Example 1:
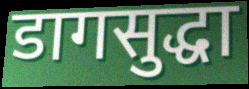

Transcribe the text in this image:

डागसुद्धा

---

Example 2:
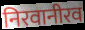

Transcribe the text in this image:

निरवानीरव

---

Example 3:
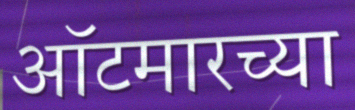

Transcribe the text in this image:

ऑटमारच्या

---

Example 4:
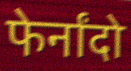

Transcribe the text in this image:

फेर्नांदो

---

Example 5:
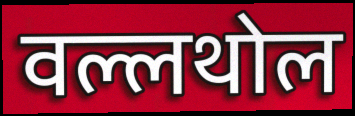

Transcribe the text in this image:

वल्लथोल